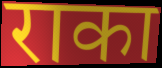
राका